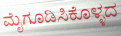
ಮೈಗೂಡಿಸಿಕೊಳ್ಳದ